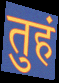
तुहं